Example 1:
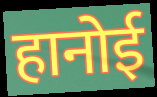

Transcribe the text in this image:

हानोई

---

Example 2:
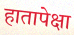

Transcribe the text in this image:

हातापेक्षा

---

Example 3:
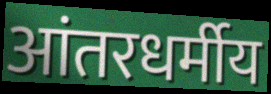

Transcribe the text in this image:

आंतरधर्मीय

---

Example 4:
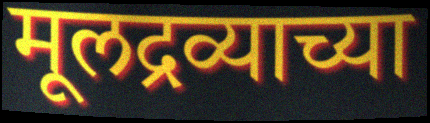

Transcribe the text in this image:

मूलद्रव्याच्या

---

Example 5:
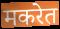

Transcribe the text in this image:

मकरेत